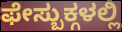
ಫೇಸ್ಬುಕ್ಗಳಲ್ಲಿ